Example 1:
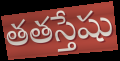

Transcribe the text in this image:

తతస్తేషు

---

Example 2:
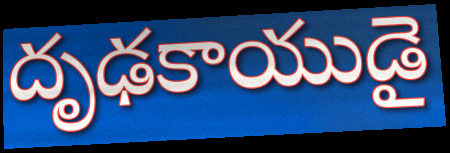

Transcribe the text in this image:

దృఢకాయుడై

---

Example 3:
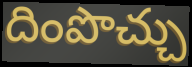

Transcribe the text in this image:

దింపొచ్చు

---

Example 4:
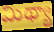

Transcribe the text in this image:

మిథ్యా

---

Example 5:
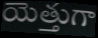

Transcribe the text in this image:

యెత్తుగా